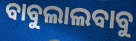
ବାବୁଲାଲବାବୁ